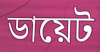
ডায়েট